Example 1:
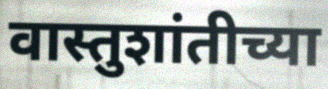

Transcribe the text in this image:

वास्तुशांतीच्या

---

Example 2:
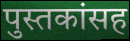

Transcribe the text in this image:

पुस्तकांसह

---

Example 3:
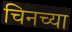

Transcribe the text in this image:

चिनच्या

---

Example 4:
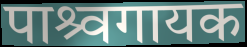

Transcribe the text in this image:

पाश्र्वगायक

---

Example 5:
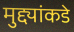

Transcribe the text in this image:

मुद्द्यांकडे